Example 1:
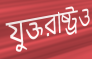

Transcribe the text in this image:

যুক্তরাষ্ট্রও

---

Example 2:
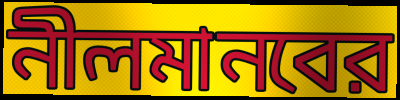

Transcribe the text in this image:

নীলমানবের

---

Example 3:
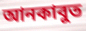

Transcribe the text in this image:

আনকাবুত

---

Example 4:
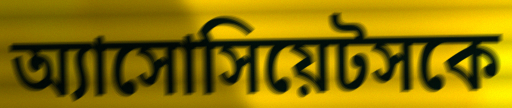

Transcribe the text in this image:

অ্যাসোসিয়েটসকে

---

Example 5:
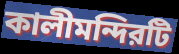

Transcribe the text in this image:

কালীমন্দিরটি